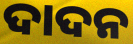
ଦାଦନ